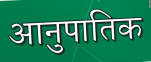
आनुपातिक